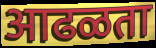
आढळता